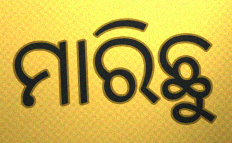
ମାରିଛୁ